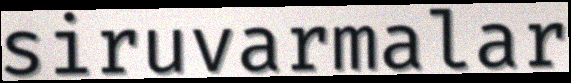
siruvarmalar